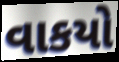
વાકયો